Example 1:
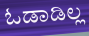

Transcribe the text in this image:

ಓಡಾಡಿಲ್ಲ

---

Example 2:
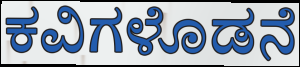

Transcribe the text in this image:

ಕವಿಗಳೊಡನೆ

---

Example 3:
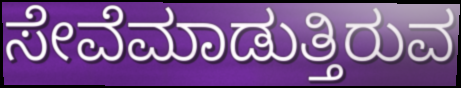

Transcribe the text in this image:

ಸೇವೆಮಾಡುತ್ತಿರುವ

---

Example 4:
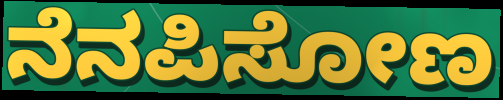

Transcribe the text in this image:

ನೆನಪಿಸೋಣ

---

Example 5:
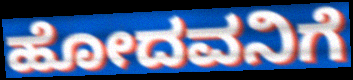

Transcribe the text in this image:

ಹೋದವನಿಗೆ